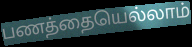
பணத்தையெல்லாம்